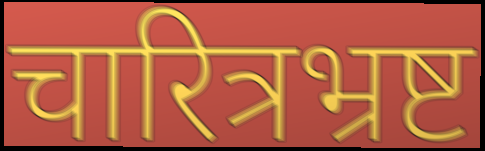
चारित्रभ्रष्ट